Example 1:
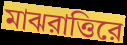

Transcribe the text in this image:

মাঝরাত্তিরে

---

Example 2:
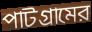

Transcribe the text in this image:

পাটগ্রামের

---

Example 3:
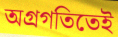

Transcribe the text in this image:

অগ্রগতিতেই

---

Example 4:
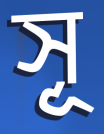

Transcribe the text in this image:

সূ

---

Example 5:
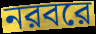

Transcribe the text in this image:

নরবরে